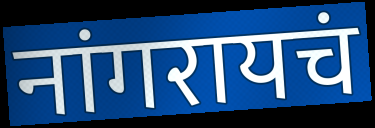
नांगरायचं